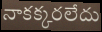
నాకక్కరలేదు